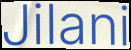
Jilani